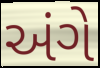
અંગે